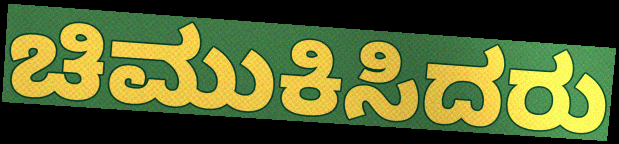
ಚಿಮುಕಿಸಿದರು